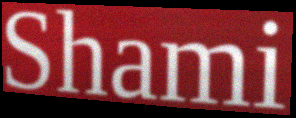
Shami